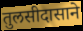
तुलसीदासाने